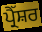
ਪ੍ਰੈੱਸ਼ਰ